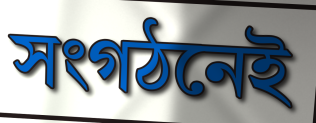
সংগঠনেই